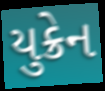
યુક્રેન